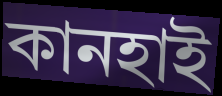
কানহাই